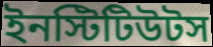
ইনস্টিটিউটস